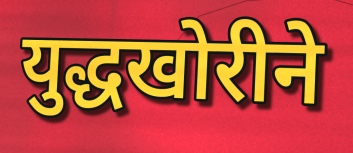
युद्धखोरीने